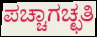
ಪಚ್ಚಾಗಚ್ಛತಿ